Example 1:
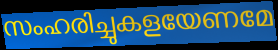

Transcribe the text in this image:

സംഹരിച്ചുകളയേണമേ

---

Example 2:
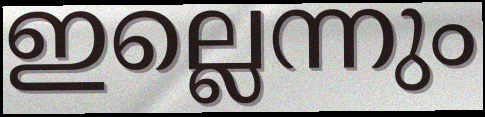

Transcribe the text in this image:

ഇല്ലെന്നും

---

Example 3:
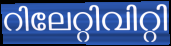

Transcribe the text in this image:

റിലേറ്റിവിറ്റി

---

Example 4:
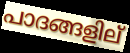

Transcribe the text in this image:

പാദങ്ങളില്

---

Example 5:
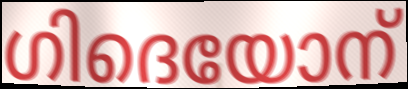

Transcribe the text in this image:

ഗിദെയോന്